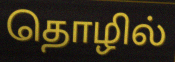
தொழில்